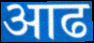
आढ